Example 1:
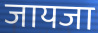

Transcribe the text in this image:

जायजा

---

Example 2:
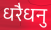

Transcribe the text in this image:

धरैधनु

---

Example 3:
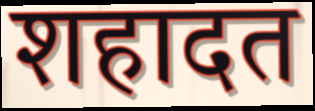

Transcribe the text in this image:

शहादत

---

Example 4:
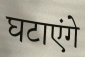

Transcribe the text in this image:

घटाएंगे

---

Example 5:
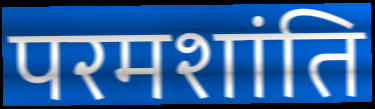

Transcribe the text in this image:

परमशांति